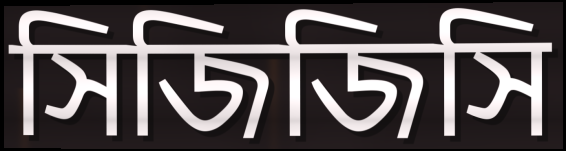
সিজিজিসি